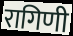
रागिणी